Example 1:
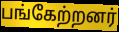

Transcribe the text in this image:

பங்கேற்றனர்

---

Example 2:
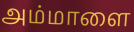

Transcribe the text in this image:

அம்மாளை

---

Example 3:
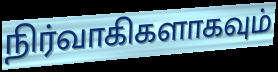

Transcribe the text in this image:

நிர்வாகிகளாகவும்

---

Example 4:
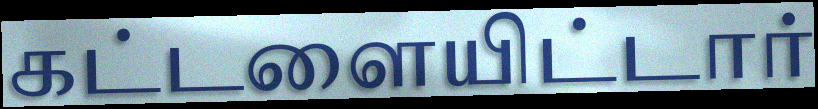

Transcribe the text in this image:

கட்டளையிட்டார்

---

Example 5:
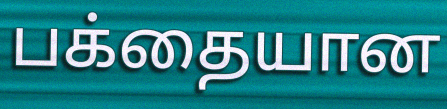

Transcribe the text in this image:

பக்தையான